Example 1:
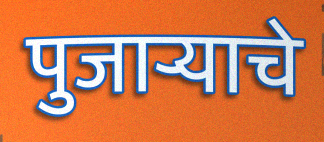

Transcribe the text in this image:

पुजाऱ्याचे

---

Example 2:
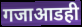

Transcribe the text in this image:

गजाआडही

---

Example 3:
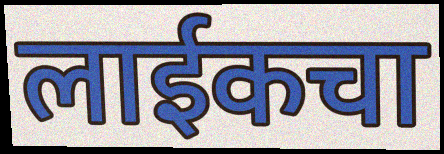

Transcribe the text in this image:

लाईकचा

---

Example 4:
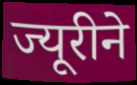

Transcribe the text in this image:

ज्यूरीने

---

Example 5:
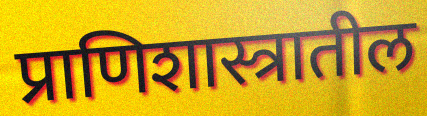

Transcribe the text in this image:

प्राणिशास्त्रातील